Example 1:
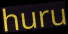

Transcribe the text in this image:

huru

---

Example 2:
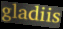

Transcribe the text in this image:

gladiis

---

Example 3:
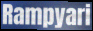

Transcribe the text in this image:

Rampyari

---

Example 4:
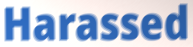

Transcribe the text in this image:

Harassed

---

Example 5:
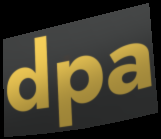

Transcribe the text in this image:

dpa